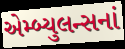
એમ્બ્યુલન્સનાં